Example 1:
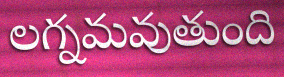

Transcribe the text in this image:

లగ్నమవుతుంది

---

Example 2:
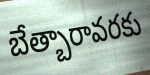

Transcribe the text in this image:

బేత్బారావరకు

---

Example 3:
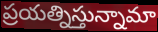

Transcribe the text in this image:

ప్రయత్నిస్తున్నామా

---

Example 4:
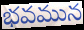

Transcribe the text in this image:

భవమున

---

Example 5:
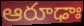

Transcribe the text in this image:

ఆరూఢాః